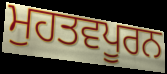
ਮੁਹਤਵਪੂਰਨ